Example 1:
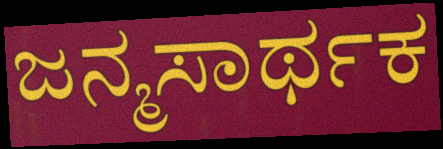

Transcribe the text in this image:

ಜನ್ಮಸಾರ್ಥಕ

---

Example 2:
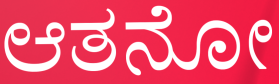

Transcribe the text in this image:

ಆತನೋ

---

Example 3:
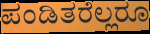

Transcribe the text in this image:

ಪಂಡಿತರೆಲ್ಲರೂ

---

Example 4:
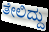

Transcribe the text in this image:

ತೇಲಿದ್ದು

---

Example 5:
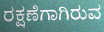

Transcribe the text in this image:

ರಕ್ಷಣೆಗಾಗಿರುವ